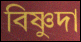
বিষ্ণুদা